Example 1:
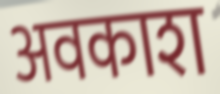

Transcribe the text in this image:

अवकाश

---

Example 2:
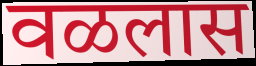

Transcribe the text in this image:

वळलास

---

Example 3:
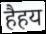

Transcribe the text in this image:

हैहय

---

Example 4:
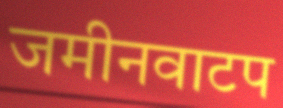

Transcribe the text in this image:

जमीनवाटप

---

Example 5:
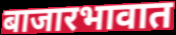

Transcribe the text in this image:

बाजारभावात